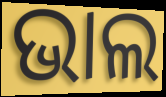
ଭାଲ